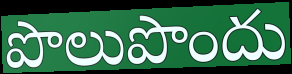
పొలుపొందు